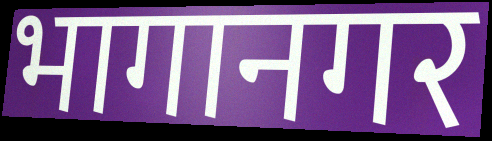
भागानगर